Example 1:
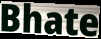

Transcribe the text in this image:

Bhate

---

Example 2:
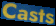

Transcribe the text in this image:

Casts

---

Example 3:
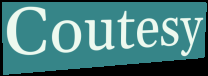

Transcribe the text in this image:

Coutesy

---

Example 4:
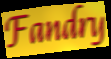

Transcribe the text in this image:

Fandry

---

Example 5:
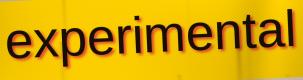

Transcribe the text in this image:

experimental